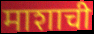
माशाची